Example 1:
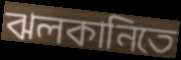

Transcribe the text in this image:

ঝলকানিতে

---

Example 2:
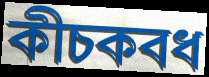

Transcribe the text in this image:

কীচকবধ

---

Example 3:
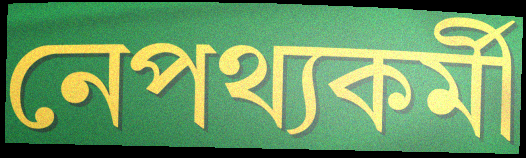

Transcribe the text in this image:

নেপথ্যকর্মী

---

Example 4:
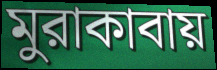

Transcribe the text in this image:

মুরাকাবায়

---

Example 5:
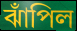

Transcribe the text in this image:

ঝাঁপিল